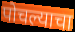
पोचल्याचा